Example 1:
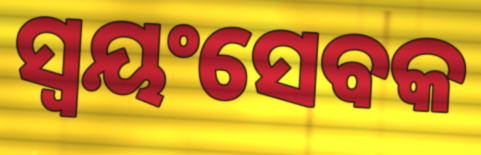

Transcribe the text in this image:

ସ୍ୱୟଂସେବକ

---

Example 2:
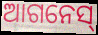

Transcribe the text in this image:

ଆଗନେସ୍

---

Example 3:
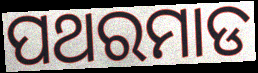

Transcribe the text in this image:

ପଥରମାଡ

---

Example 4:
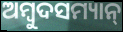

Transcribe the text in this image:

ଅମ୍ୱୁଦସମ୍ୟାନ୍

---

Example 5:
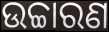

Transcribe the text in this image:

ଉଚ୍ଚାରଣ